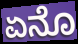
ಏನೊ